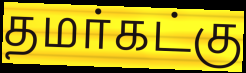
தமர்கட்கு